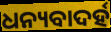
ଧନ୍ୟବାଦର୍ହ